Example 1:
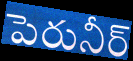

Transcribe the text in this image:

పెరునీర్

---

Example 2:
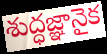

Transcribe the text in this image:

శుద్ధజ్ఞానైక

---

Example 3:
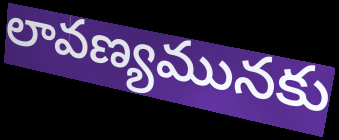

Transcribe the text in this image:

లావణ్యమునకు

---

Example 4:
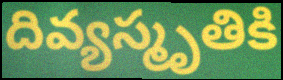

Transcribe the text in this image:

దివ్యస్మృతికి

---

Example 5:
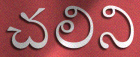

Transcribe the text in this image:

చలిని